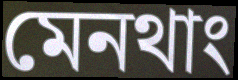
মেনথাং